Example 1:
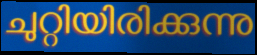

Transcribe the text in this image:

ചുറ്റിയിരിക്കുന്നു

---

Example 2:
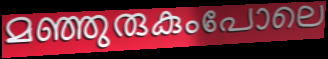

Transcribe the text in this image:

മഞ്ഞുരുകുംപോലെ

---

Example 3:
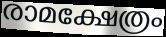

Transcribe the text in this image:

രാമക്ഷേത്രം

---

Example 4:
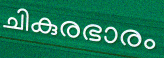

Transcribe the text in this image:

ചികുരഭാരം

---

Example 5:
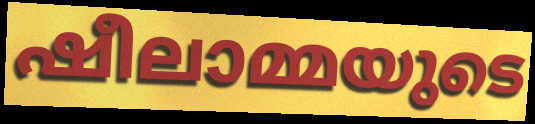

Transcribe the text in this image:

ഷീലാമ്മയുടെ